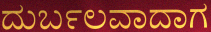
ದುರ್ಬಲವಾದಾಗ